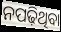
ନପଢ଼ିଥିବା